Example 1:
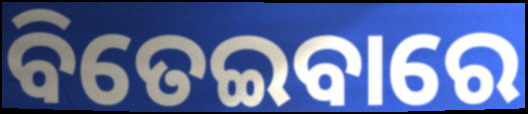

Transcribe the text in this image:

ବିତେଇବାରେ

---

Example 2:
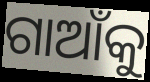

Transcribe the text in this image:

ଗାଆଁକୁ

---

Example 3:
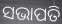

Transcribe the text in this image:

ସଭାପତି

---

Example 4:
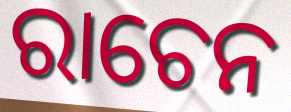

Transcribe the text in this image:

ରାଚେନ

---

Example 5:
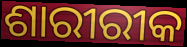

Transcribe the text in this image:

ଶାରୀରୀକ